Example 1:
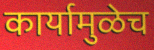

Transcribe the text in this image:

कार्यामुळेच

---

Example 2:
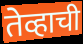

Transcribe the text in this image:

तेव्हाची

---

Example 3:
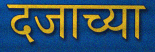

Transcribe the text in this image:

दजाच्या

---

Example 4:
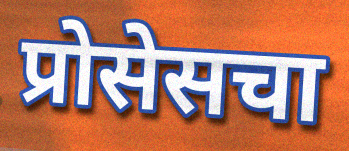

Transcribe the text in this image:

प्रोसेसचा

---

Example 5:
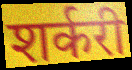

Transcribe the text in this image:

शर्करी